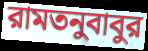
রামতনুবাবুর